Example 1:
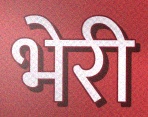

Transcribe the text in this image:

भेरी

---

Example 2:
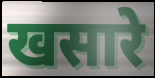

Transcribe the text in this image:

खसारे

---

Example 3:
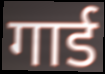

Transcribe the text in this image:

गार्ड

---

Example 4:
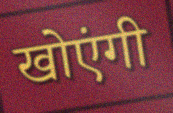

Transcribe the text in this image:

खोएंगी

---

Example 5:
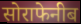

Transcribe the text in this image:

सोराफेनीब